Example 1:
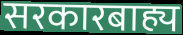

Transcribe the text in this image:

सरकारबाह्य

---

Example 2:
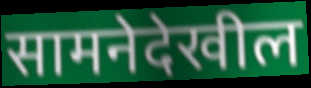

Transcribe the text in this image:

सामनेदेखील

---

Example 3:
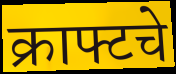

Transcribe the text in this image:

क्राफ्टचे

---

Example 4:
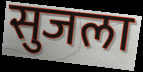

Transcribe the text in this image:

सुजला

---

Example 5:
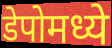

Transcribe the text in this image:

डेपोमध्ये